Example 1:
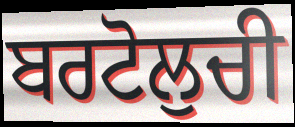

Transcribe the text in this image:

ਬਰਟੋਲੁਚੀ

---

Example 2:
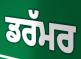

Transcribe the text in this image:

ਡਰੱਮਰ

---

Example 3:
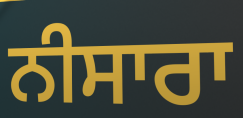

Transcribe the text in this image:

ਨੀਸਾਰਾ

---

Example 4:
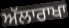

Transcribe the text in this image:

ਅੱਲਾਰਾਖਾ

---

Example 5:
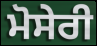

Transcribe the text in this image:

ਮੋਸੇਰੀ